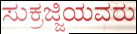
ಸುಕ್ರಜ್ಜಿಯವರು